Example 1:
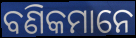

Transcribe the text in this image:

ବଣିକମାନେ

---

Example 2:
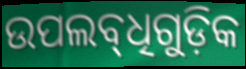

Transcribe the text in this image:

ଉପଲବ୍‌ଧିଗୁଡ଼ିକ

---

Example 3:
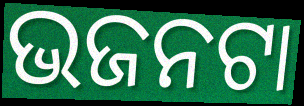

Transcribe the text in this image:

ଭଜନଟା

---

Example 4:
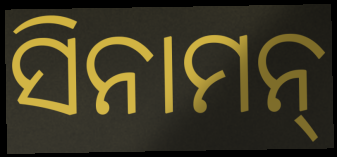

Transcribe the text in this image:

ସିନାମନ୍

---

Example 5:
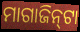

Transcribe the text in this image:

ମାଗାଜିନ୍‌ଟା